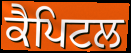
ਕੈਪਿਟਲ